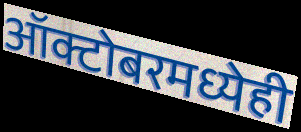
ऑक्टोबरमध्येही